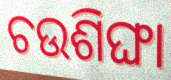
ଚଉଶିଙ୍ଘା